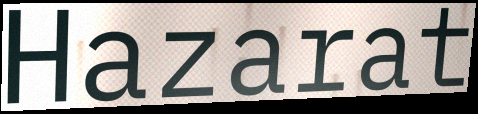
Hazarat